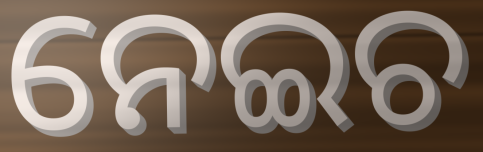
ନେଇଚ